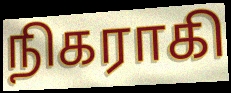
நிகராகி